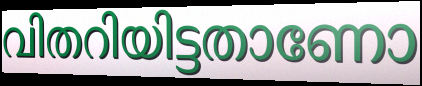
വിതറിയിട്ടതാണോ